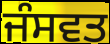
ਜੰਸਵਤ